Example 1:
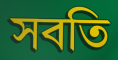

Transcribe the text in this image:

সবতি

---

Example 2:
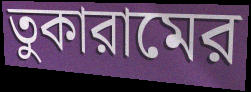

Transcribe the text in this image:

তুকারামের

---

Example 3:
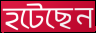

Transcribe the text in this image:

হটেছেন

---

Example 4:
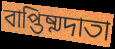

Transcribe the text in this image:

বাপ্তিষ্মদাতা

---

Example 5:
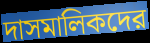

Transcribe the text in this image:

দাসমালিকদের